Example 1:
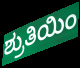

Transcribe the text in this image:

ಶ್ರುತಿಯಿಂ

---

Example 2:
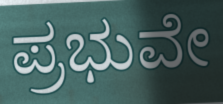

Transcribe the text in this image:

ಪ್ರಭುವೇ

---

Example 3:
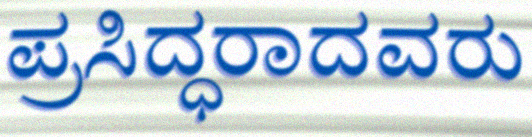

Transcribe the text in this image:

ಪ್ರಸಿದ್ಧರಾದವರು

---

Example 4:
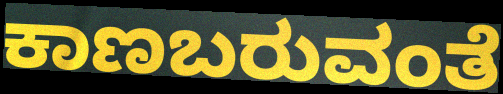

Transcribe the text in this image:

ಕಾಣಬರುವಂತೆ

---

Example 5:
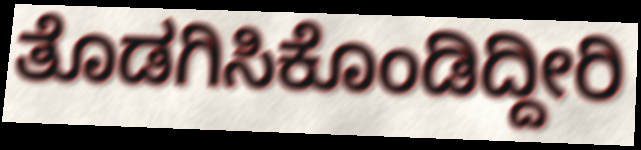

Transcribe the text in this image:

ತೊಡಗಿಸಿಕೊಂಡಿದ್ದೀರಿ